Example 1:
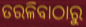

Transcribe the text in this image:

ତରଳିବାଠାରୁ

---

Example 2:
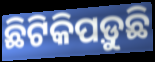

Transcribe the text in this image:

ଛିଟିକିପଡ଼ୁଛି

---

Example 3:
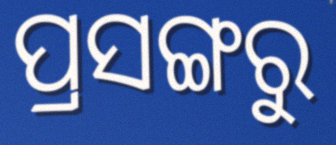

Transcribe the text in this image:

ପ୍ରସଙ୍ଗରୁ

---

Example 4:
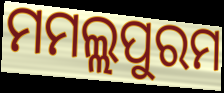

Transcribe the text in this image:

ମମଲ୍ଲପୁରମ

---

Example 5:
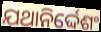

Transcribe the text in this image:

ଯଥାନିର୍ଦ୍ଦେଶଂ